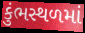
કુંભસ્થળમાં